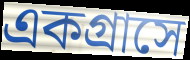
একগ্রাসে